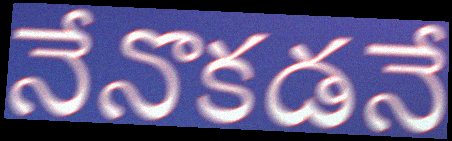
నేనొకడనే